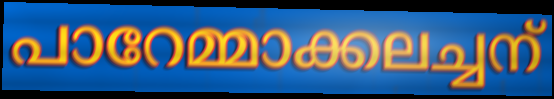
പാറേമ്മാക്കലച്ചന്